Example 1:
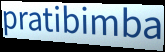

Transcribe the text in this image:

pratibimba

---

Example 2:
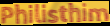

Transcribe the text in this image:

Philisthim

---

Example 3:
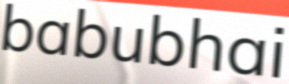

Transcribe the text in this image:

babubhai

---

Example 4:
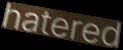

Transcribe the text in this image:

hatered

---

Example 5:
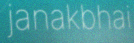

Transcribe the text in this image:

janakbhai